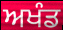
ਅਖੰਡ